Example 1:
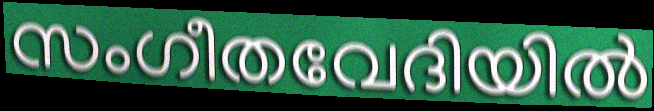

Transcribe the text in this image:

സംഗീതവേദിയിൽ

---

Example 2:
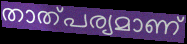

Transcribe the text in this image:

താത്പര്യമാണ്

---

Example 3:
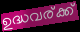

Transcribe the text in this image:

ഉദ്ധവര്ക്ക്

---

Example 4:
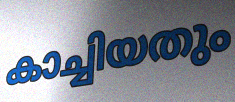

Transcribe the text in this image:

കാച്ചിയതും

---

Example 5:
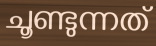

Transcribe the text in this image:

ചൂണ്ടുന്നത്